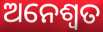
ଅନେଶ୍ଵତ